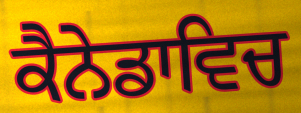
ਕੈਨੇਡਾਵਿਚ